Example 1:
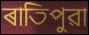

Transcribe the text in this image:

ৰাতিপুৱা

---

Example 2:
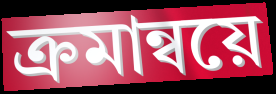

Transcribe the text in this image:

ক্ৰমান্বয়ে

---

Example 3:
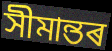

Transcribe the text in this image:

সীমান্তৰ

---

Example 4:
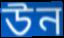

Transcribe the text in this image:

উন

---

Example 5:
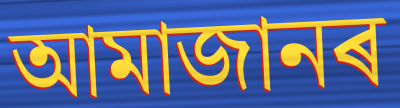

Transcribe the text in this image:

আমাজানৰ